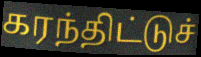
கரந்திட்டுச்